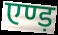
एण्ड़